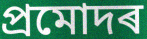
প্ৰমোদৰ